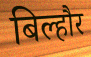
बिल्हौर